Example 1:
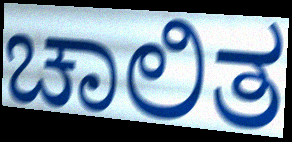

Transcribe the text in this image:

ಚಾಲಿತ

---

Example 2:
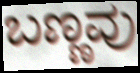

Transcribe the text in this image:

ಬಣ್ಣವು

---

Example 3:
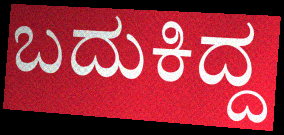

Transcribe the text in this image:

ಬದುಕಿದ್ದ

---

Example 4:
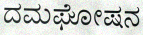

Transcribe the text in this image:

ದಮಘೋಷನ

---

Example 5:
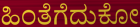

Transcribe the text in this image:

ಹಿಂತೆಗೆದುಕೋ